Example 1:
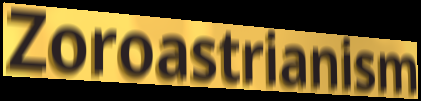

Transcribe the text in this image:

Zoroastrianism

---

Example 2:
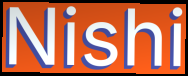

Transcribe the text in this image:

Nishi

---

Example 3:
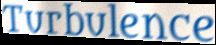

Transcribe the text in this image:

Turbulence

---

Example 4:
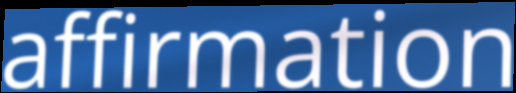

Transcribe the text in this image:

affirmation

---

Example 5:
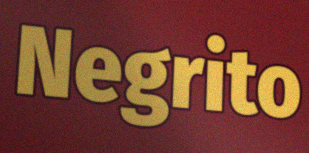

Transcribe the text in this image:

Negrito